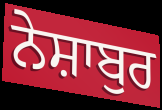
ਨੇਸ਼ਾਬੁਰ